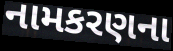
નામકરણના